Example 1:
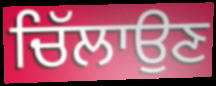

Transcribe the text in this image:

ਚਿੱਲਾਉਣ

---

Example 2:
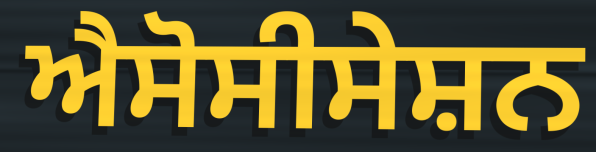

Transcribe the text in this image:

ਐਸੋਸੀਸੇਸ਼ਨ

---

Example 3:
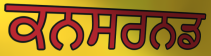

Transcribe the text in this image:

ਕਨਸਰਨਡ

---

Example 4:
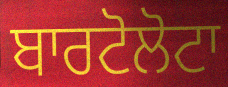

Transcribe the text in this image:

ਬਾਰਟੋਲੋਟਾ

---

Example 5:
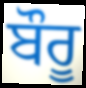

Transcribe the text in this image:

ਬੌਰੂ